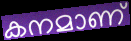
കനമാണ്